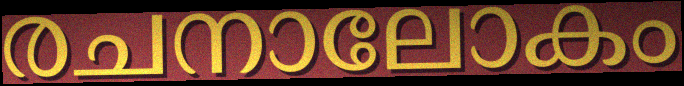
രചനാലോകം